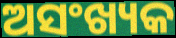
ଅସଂଖ୍ୟକ